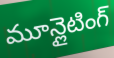
మూన్లైటింగ్